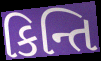
કિન્તિ